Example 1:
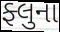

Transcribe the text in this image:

ફ્લુના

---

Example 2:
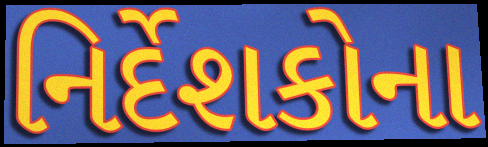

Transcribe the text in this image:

નિર્દેશકોના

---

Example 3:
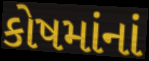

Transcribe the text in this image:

કોષમાંનાં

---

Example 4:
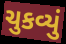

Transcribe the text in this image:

ચુકવ્યું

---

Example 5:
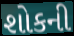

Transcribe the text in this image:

શોકની